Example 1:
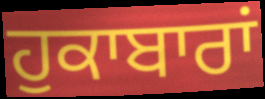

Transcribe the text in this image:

ਹੁਕਾਬਾਰਾਂ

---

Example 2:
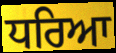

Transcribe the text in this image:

ਧਰਿਆ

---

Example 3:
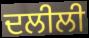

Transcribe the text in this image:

ਦਲੀਲੀ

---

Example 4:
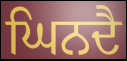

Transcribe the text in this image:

ਘਿਨਦੈ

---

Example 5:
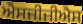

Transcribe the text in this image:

ਐਸਜੀਜੀਐਸ